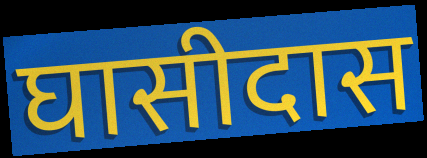
घासीदास